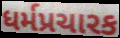
ધર્મપ્રચારક